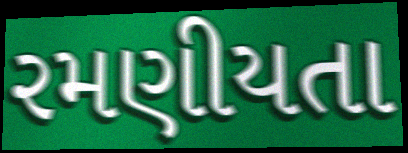
રમણીયતા